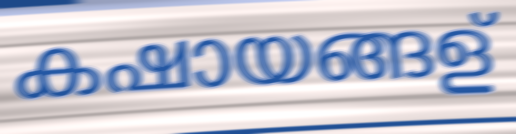
കഷായങ്ങള്